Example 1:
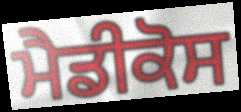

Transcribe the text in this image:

ਮੈਡੀਕੋਸ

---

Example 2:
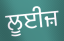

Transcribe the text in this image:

ਲੂਈਜ਼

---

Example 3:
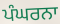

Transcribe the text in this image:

ਪੰਘਰਨਾ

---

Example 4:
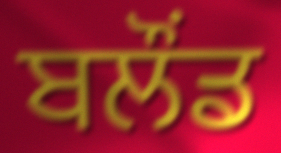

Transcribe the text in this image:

ਬਲੌਂਡ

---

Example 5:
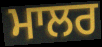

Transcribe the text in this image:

ਮਾਲਰ